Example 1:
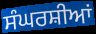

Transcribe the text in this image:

ਸੰਘਰਸ਼ੀਆਂ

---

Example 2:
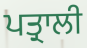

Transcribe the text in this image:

ਪਤ੍ਰਾਲੀ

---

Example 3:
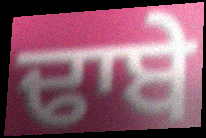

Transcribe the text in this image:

ਢਾਬੇ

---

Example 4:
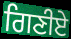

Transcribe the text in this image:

ਗਿਣੀਏ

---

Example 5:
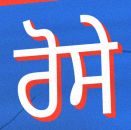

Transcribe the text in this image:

ਰੋਸੇ